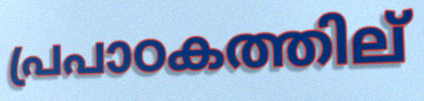
പ്രപാഠകത്തില്